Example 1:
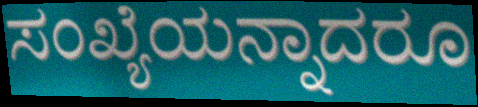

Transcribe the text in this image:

ಸಂಖ್ಯೆಯನ್ನಾದರೂ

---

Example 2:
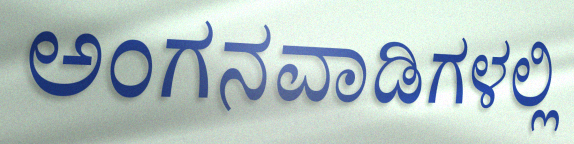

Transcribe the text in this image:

ಅಂಗನವಾಡಿಗಳಲ್ಲಿ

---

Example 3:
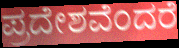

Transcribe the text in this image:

ಪ್ರದೇಶವೆಂದರೆ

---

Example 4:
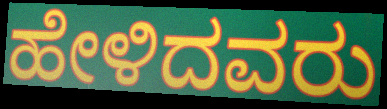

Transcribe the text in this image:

ಹೇಳಿದವರು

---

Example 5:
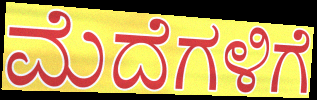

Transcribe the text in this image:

ಮೆದೆಗಳಿಗೆ